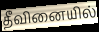
தீவினையில்